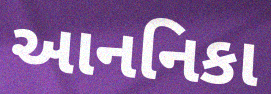
આનનિકા